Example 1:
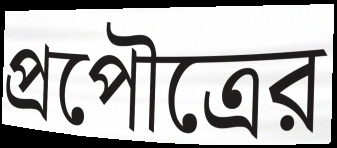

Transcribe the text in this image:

প্রপৌত্রের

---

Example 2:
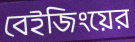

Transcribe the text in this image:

বেইজিংয়ের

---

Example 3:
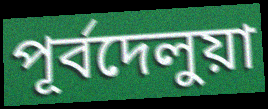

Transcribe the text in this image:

পূর্বদেলুয়া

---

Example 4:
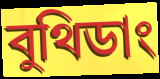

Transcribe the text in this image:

বুথিডাং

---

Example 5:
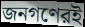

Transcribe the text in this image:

জনগণেরই